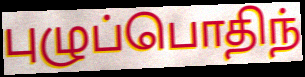
புழுப்பொதிந்